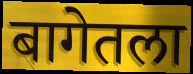
बागेतला